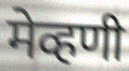
मेव्हणी